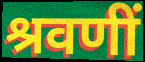
श्रवणीं